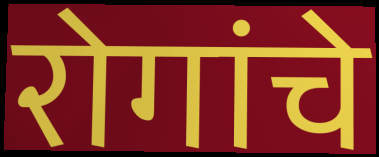
रोगांचे